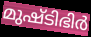
മുഷ്ടിഭിർ